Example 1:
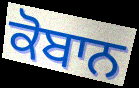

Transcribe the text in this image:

ਕੋਬਾਨ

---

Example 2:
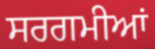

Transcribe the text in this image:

ਸਰਗਮੀਆਂ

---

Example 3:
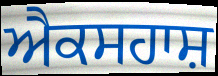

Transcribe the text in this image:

ਐਕਸਹਾਸ਼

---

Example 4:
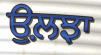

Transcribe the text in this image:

ਉਲ਼ਝਾ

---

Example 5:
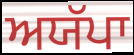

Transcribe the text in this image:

ਅਯੱਪਾ